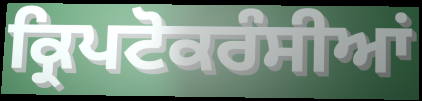
ਕ੍ਰਿਪਟੋਕਰੰਸੀਆਂ